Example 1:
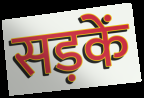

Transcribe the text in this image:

सड़कें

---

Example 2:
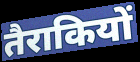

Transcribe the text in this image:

तैराकियों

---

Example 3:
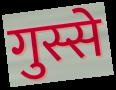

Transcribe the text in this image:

गुस्से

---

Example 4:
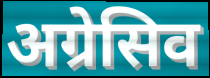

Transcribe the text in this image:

अग्रेसिव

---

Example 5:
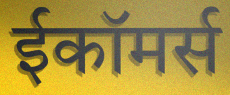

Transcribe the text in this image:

ईकॉमर्स